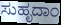
ಸುಹೃದಾಂ